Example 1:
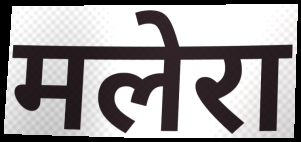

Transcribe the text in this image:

मलेरा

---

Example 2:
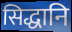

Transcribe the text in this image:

सिद्धानि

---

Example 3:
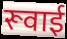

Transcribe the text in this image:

रूवाई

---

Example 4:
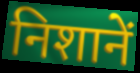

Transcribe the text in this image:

निशानें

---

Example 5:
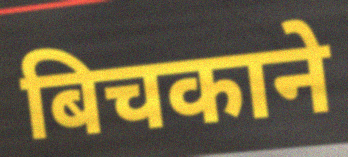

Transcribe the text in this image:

बिचकाने